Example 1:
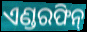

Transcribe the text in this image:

ଏଣ୍ଡରଫିନ୍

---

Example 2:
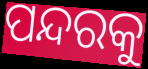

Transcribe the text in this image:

ପନ୍ଦରକୁ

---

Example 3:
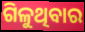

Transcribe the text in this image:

ଗିଳୁଥିବାର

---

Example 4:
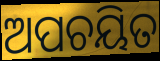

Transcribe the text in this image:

ଅପଚୟିତ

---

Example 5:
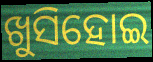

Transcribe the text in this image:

ଖୁସିହୋଇ